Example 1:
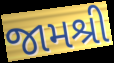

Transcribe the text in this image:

જામશ્રી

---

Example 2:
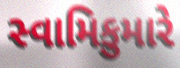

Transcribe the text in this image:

સ્વામિકુમારે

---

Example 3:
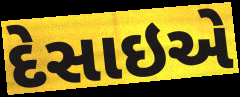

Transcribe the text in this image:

દેસાઇએ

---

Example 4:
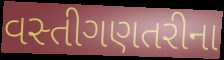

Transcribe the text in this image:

વસ્તીગણતરીના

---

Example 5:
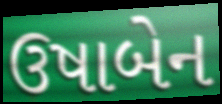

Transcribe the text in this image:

ઉષાબેન